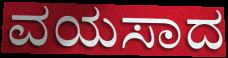
ವಯಸಾದ